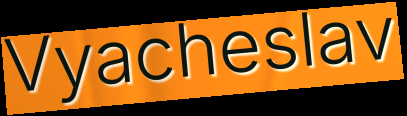
Vyacheslav